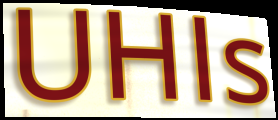
UHIs